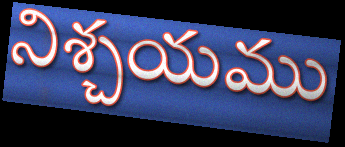
నిశ్చయము